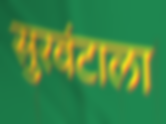
सुरवंटाला